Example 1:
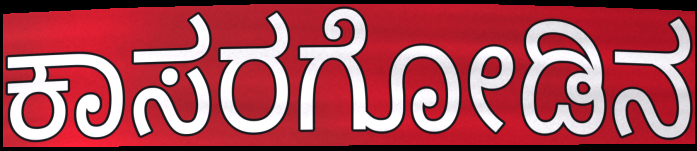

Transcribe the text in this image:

ಕಾಸರಗೋಡಿನ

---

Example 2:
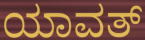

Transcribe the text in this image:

ಯಾವತ್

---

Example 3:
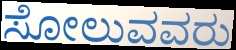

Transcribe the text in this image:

ಸೋಲುವವರು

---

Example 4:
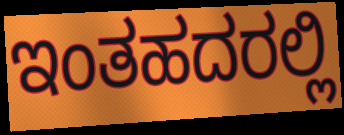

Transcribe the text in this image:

ಇಂತಹದರಲ್ಲಿ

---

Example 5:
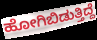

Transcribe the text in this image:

ಹೋಗಿಬಿಡುತ್ತಿದ್ದೆ